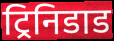
ट्रिनिडाड